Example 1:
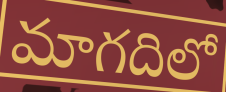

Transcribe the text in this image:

మాగదిలో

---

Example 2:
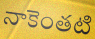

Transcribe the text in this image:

నాకెంతటి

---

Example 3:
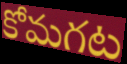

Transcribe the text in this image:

కోమగట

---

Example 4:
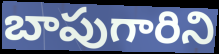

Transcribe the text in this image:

బాపుగారిని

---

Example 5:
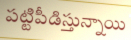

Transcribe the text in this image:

పట్టిపీడిస్తున్నాయి